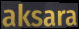
aksara